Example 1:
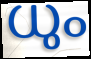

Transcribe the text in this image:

ധും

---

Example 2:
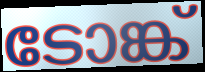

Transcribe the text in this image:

ടോങ്ക്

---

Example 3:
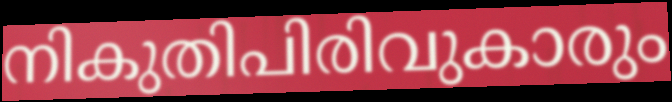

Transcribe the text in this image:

നികുതിപിരിവുകാരും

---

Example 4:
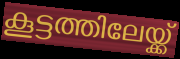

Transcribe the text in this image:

കൂട്ടത്തിലേയ്ക്ക്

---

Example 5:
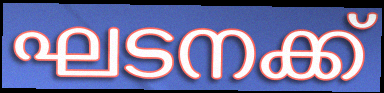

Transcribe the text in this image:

ഘടനക്ക്